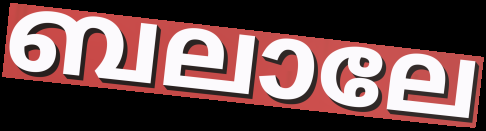
ബലാലേ